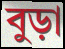
বুড়া